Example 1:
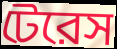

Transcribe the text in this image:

টেরেস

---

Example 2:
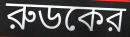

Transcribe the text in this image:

রুডকের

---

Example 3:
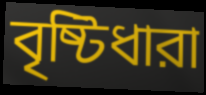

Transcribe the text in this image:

বৃষ্টিধারা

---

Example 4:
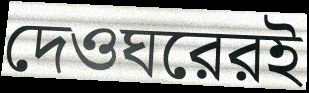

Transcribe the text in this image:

দেওঘরেরই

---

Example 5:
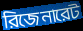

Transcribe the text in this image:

রিজেনারেট